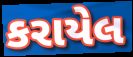
કરાયેલ